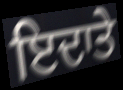
ਇਦਾਤੇ